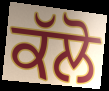
ਕੱਲੋ